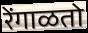
रेंगाळतो